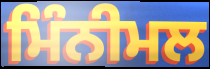
ਮਿੰਨੀਮਲ